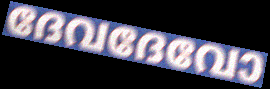
ദേവദേവോ